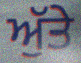
ਅੁੱਤੇ